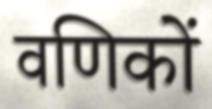
वणिकों